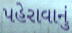
પહેરાવાનું